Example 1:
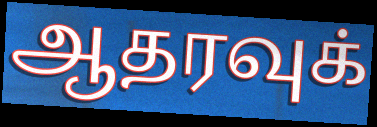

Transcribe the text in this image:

ஆதரவுக்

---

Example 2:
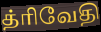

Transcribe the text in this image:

த்ரிவேதி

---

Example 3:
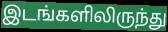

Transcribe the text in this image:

இடங்களிலிருந்து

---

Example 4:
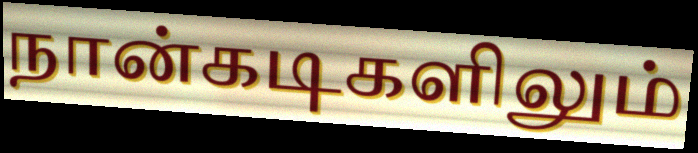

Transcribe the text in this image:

நான்கடிகளிலும்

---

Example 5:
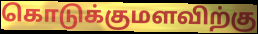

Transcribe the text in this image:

கொடுக்குமளவிற்கு